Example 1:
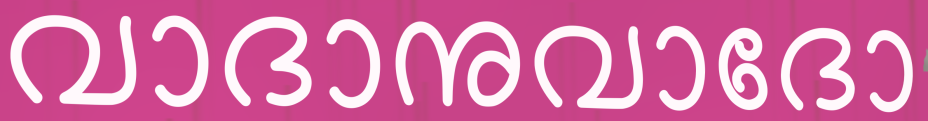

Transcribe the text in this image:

വാദാനുവാദോ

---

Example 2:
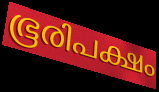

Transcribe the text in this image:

ഭൂരിപക്ഷം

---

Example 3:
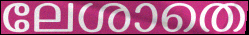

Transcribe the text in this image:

ലേശാതെ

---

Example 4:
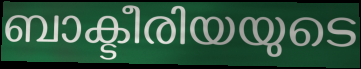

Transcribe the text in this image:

ബാക്ടീരിയയുടെ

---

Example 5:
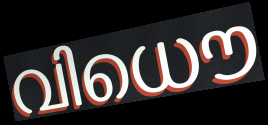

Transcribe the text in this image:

വിധൌ